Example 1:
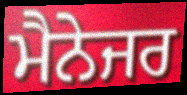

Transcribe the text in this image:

ਮੈਨੇਜਰ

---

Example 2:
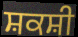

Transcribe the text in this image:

ਸ਼ਕਸ਼ੀ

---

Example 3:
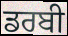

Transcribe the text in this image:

ਡਰਬੀ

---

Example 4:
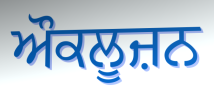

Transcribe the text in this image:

ਔਕਲੂਜ਼ਨ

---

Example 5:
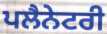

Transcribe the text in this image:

ਪਲੈਨੇਟਰੀ